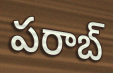
పరాబ్